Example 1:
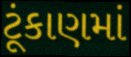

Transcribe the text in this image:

ટૂંકાણમાં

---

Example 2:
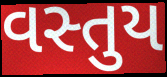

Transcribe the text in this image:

વસ્તુય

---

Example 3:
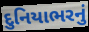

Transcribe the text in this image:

દુનિયાભરનું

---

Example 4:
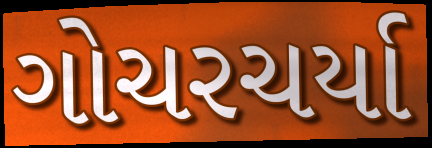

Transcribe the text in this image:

ગોચરચર્યા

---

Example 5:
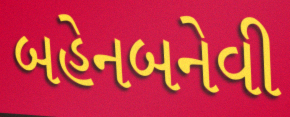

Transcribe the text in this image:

બહેનબનેવી